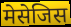
मेसेजिस